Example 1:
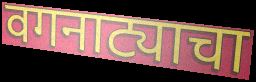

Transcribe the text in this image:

वगनाट्याचा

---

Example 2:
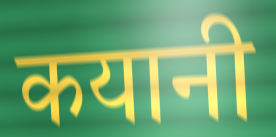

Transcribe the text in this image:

कयानी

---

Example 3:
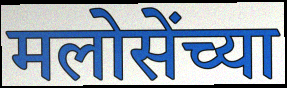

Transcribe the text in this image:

मलोसेंच्या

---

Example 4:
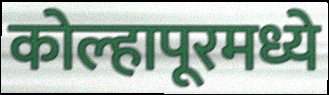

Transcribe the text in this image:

कोल्हापूरमध्ये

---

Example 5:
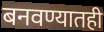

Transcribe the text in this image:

बनवण्यातही